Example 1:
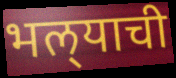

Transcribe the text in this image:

भल्याची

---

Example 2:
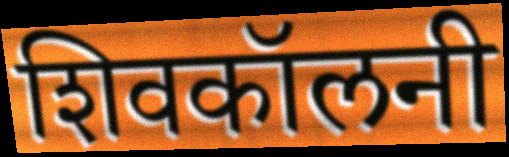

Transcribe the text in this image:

शिवकॉलनी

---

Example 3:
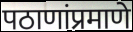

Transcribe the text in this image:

पठाणांप्रमाणे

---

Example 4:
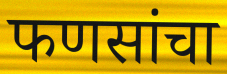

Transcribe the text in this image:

फणसांचा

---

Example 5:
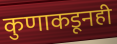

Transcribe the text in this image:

कुणाकडूनही